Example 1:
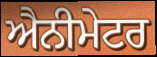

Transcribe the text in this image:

ਐਨੀਮੇਟਰ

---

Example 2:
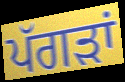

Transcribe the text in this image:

ਪੱਗੜਾਂ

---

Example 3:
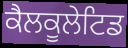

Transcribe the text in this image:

ਕੈਲਕੂਲੇਟਿਡ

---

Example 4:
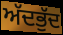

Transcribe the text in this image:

ਅੱਦਭੁੱਦ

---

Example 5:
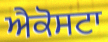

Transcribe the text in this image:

ਐਕੋਸਟਾ